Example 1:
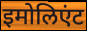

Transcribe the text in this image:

इमोलिएंट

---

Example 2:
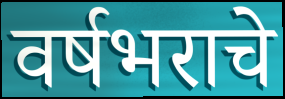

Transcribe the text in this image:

वर्षभराचे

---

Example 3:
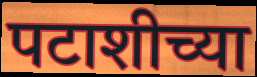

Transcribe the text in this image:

पटाशीच्या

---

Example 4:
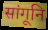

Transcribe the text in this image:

सांगूनि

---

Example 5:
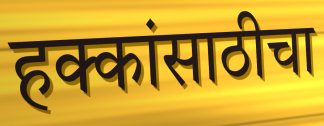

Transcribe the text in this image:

हक्कांसाठीचा